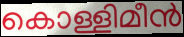
കൊള്ളിമീൻ